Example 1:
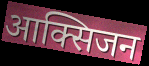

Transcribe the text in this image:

आक्सिजन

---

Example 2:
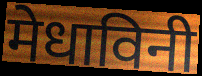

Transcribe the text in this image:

मेधाविनी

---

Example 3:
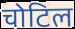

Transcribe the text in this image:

चोटिल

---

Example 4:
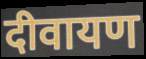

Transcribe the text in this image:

दीवायण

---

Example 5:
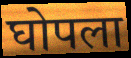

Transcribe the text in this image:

घोपला